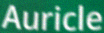
Auricle